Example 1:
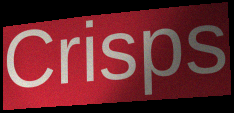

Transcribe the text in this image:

Crisps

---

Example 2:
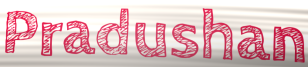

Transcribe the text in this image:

Pradushan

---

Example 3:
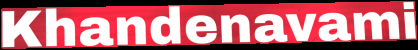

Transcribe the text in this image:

Khandenavami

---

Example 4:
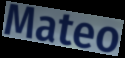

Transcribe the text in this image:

Mateo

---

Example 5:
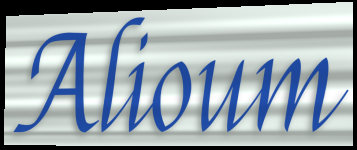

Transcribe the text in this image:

Alioum